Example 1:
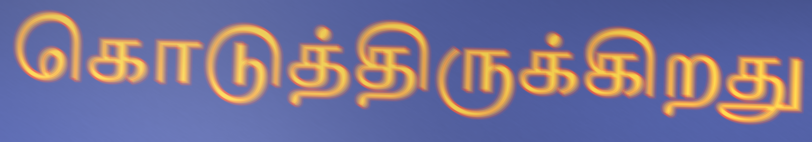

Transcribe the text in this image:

கொடுத்திருக்கிறது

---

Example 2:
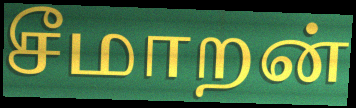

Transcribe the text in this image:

சீமாறன்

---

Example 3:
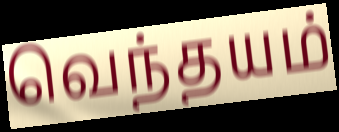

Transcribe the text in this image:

வெந்தயம்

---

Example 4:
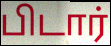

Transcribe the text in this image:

பிடார்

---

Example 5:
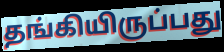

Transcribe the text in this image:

தங்கியிருப்பது